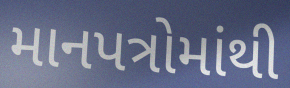
માનપત્રોમાંથી